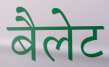
बैलेट